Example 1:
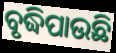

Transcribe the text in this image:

ବୃଦ୍ଧିପାଉଛି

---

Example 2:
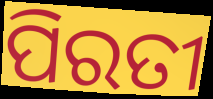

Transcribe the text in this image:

ପିରତୀ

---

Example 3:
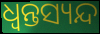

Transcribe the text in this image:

ଧ୍ଵନ୍ତସ୍ୟନ୍ଦ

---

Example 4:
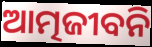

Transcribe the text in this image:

ଆତ୍ମଜୀବନି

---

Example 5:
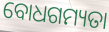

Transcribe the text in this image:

ବୋଧଗମ୍ୟତା